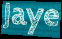
Jaye